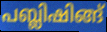
പബ്ലിഷിങ്ങ്